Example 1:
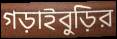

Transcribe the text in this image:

গড়াইবুড়ির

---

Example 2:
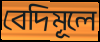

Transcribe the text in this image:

বেদিমূলে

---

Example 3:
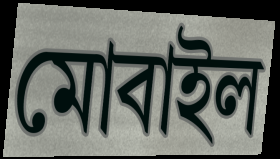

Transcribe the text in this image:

মোবাইল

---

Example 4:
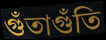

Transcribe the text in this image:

গুঁতাগুঁতি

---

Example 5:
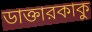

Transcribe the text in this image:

ডাক্তারকাকু